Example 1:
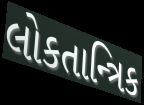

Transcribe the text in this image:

લોકતાન્ત્રિક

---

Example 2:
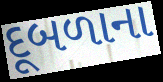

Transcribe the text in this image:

દૂબળાના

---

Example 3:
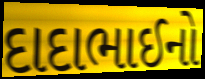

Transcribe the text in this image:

દાદાભાઈનો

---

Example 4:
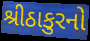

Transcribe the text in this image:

શ્રીઠાકુરનો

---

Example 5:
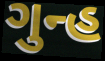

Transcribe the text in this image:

ગુન્હ